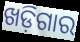
ଖଡ଼ିଗାର